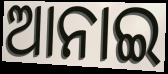
ଆନାଇ